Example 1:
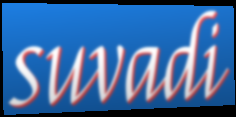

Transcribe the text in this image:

suvadi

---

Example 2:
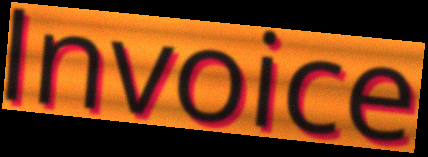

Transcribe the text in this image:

Invoice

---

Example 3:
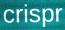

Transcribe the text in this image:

crispr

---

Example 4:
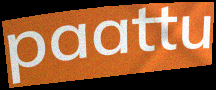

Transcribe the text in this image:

paattu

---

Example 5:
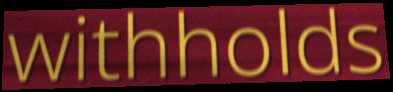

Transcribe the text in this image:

withholds